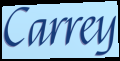
Carrey